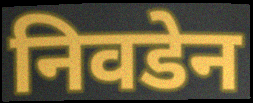
निवडेन